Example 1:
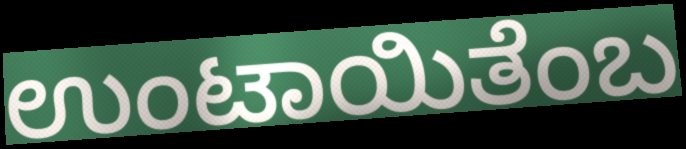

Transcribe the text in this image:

ಉಂಟಾಯಿತೆಂಬ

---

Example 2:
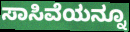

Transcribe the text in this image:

ಸಾಸಿವೆಯನ್ನೂ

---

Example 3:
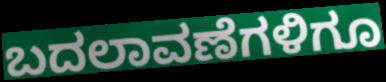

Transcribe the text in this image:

ಬದಲಾವಣೆಗಳಿಗೂ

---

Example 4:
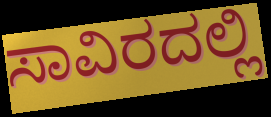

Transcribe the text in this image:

ಸಾವಿರದಲ್ಲಿ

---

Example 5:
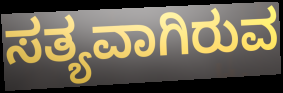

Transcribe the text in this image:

ಸತ್ಯವಾಗಿರುವ